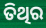
ତିଥିର